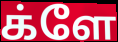
க்ளே